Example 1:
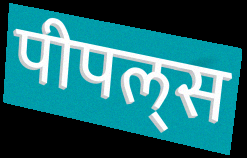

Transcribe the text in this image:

पीपल्स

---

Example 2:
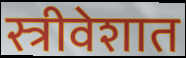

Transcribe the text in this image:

स्त्रीवेशात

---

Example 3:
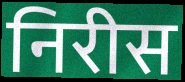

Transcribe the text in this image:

निरीस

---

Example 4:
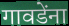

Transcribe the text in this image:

गावडेंना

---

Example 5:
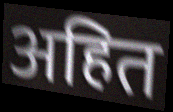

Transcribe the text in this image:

अहित